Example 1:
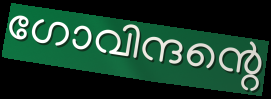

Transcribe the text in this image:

ഗോവിന്ദന്റെ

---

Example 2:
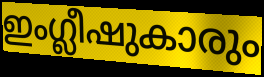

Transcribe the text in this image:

ഇംഗ്ലീഷുകാരും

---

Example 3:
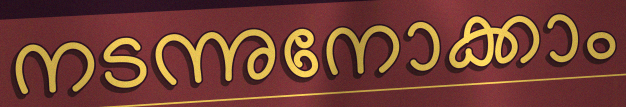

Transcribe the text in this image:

നടന്നുനോക്കാം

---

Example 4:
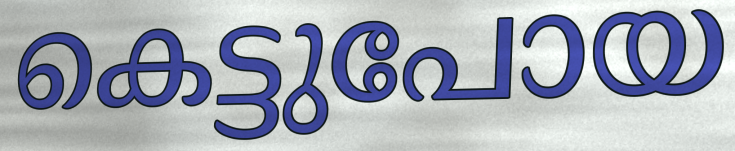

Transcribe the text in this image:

കെട്ടുപോയ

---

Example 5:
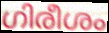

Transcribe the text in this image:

ഗിരീശം